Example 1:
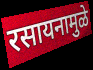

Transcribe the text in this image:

रसायनामुळे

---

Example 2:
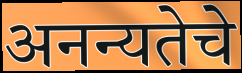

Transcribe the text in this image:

अनन्यतेचे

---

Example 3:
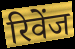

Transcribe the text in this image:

रिवेंज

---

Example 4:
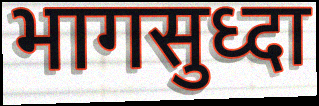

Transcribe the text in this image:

भागसुध्दा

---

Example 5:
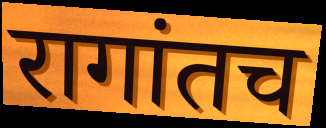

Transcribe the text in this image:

रागांतच